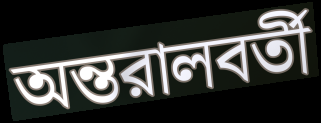
অন্তরালবর্তী